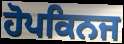
ਹੋਪਕਿਨਜ